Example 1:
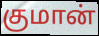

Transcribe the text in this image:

குமான்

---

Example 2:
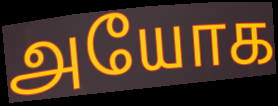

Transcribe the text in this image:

அயோக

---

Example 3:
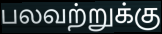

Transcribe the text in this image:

பலவற்றுக்கு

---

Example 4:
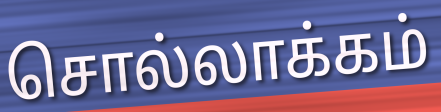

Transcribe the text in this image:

சொல்லாக்கம்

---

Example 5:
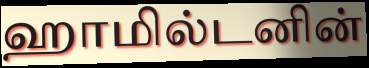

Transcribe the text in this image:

ஹாமில்டனின்